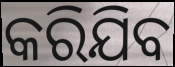
କରିଯିବ